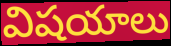
విషయాలు